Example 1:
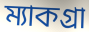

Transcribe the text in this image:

ম্যাকগ্রা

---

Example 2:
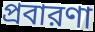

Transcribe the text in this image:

প্রবারণা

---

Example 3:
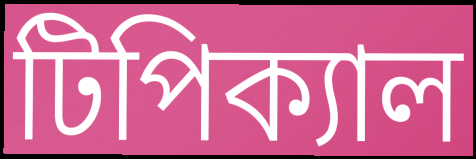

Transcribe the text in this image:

টিপিক্যাল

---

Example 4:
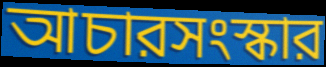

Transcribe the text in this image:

আচারসংস্কার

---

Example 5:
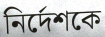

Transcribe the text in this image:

নির্দেশকে